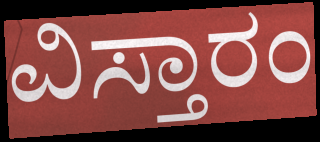
ವಿಸ್ತಾರಂ